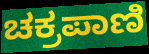
ಚಕ್ರಪಾಣಿ